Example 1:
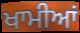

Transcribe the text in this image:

ਖਾਮੀਆਂ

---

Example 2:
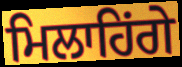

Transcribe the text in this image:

ਮਿਲਾਹਿਂਗੇ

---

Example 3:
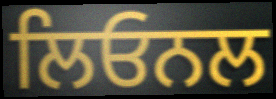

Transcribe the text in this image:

ਲਿਓਨਲ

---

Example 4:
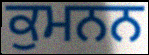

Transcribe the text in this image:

ਕੁਮਨਨ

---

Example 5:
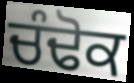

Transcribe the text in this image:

ਚੰਢੋਕ